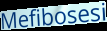
Mefibosesi